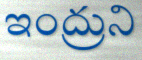
ఇంద్రుని